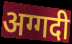
अग्गदी